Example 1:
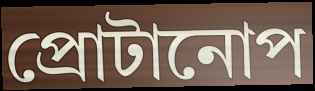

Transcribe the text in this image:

প্রোটানোপ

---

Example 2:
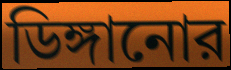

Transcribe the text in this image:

ডিঙ্গানোর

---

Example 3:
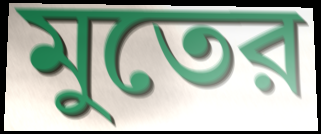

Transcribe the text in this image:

মুতের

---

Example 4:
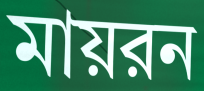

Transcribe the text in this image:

মায়রন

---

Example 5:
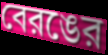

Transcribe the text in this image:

বেরঙের